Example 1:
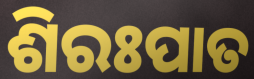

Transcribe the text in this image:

ଶିରଃପାତ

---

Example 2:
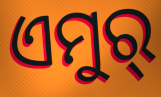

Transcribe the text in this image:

ଏମୁର୍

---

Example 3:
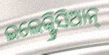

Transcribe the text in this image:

ଇଲେକ୍ଟ୍ରିସିଆନ୍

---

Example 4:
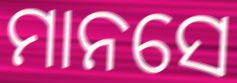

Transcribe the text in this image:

ମାନସେ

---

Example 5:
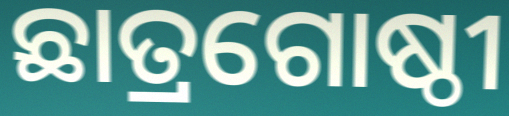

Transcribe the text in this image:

ଛାତ୍ରଗୋଷ୍ଠୀ